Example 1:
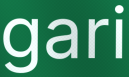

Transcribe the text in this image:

gari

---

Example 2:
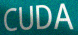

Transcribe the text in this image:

CUDA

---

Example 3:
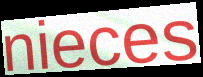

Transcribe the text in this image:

nieces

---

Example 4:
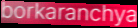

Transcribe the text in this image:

borkaranchya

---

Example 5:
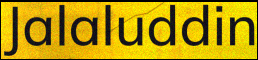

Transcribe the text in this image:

Jalaluddin